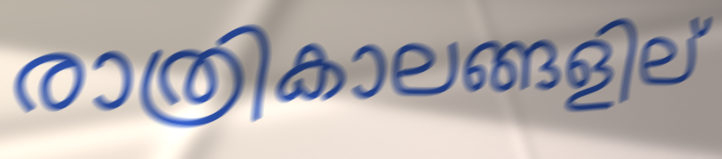
രാത്രികാലങ്ങളില്